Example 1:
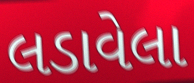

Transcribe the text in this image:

લડાવેલા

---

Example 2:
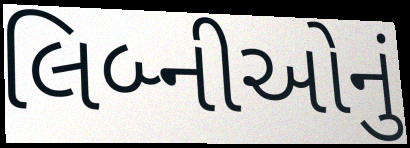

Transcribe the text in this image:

લિબ્નીઓનું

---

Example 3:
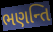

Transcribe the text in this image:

ભણન્તિ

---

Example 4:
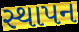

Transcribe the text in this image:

સ્થાપન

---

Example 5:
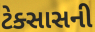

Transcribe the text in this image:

ટેક્સાસની